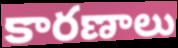
కారణాలు